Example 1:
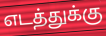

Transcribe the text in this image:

எடத்துக்கு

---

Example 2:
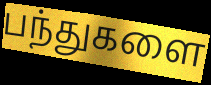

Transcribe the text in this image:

பந்துகளை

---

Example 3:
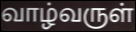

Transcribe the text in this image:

வாழ்வருள்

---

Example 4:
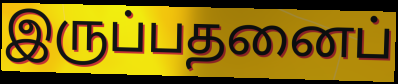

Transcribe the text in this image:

இருப்பதனைப்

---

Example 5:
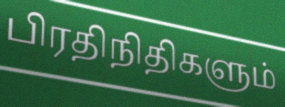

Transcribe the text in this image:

பிரதிநிதிகளும்